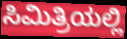
ಸಿಮಿತ್ರಿಯಲ್ಲಿ